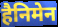
हैनिमेन